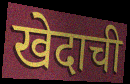
खेदाची